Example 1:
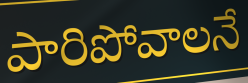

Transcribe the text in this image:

పారిపోవాలనే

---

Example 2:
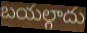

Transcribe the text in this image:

బయల్గాదు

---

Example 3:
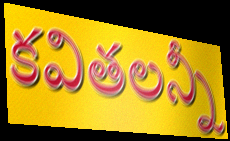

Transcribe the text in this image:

కవితలన్నీ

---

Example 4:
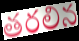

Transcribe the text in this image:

తరలిన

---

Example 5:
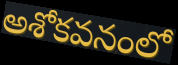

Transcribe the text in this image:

అశోకవనంలో